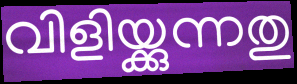
വിളിയ്ക്കുന്നതു